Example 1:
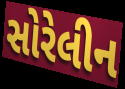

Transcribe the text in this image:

સોરેલીન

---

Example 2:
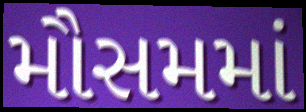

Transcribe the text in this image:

મૌસમમાં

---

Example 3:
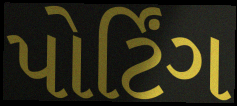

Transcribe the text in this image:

પોર્ટિંગ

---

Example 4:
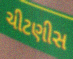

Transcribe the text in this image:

ચીટણીસ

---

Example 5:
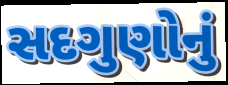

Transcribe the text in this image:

સદગુણોનું